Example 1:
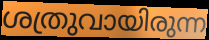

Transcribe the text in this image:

ശത്രുവായിരുന്ന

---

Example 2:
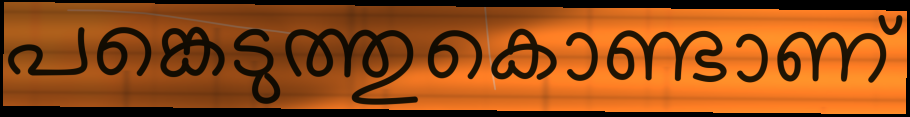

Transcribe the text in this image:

പങ്കെടുത്തുകൊണ്ടാണ്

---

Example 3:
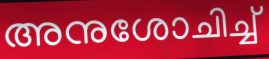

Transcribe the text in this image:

അനുശോചിച്ച്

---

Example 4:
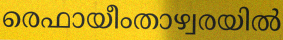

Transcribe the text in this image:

രെഫായീംതാഴ്വരയിൽ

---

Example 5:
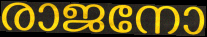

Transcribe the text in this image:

രാജനോ